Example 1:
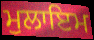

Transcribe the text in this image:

ਮੁਲਾਇਮ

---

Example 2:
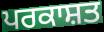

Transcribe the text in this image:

ਪਰਕਾਸ਼ਤ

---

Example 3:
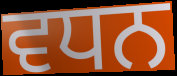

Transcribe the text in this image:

ਵਧਨ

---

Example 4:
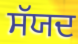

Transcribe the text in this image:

ਸੱਯਦ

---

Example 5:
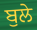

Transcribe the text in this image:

ਬੁਲੇ